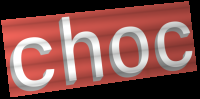
choc